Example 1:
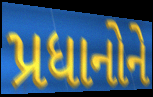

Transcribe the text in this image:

પ્રધાનોને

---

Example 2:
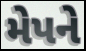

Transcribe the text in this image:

મેપને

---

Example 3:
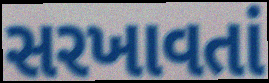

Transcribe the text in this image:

સરખાવતાં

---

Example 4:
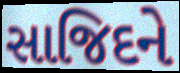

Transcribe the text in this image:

સાજિદને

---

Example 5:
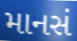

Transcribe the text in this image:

માનસં